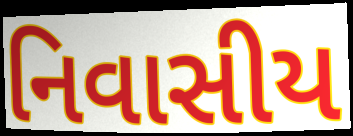
નિવાસીય